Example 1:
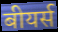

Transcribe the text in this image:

बीयर्स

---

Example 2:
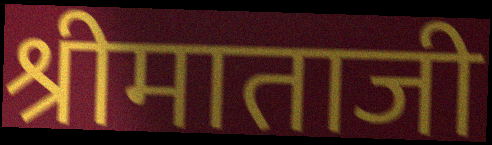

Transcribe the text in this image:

श्रीमाताजी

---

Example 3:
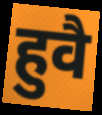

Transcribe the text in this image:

हुवै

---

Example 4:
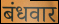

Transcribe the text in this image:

बंधवार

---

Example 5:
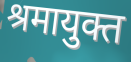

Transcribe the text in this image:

श्रमायुक्त